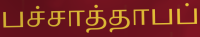
பச்சாத்தாபப்